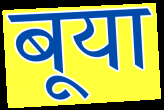
बूया